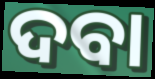
ଦବା